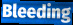
Bleeding